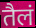
तैलं